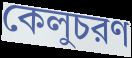
কেলুচরণ